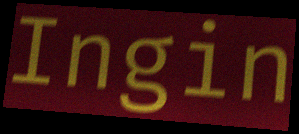
Ingin